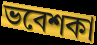
ভবেশকা